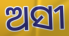
ଅସୀ